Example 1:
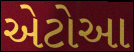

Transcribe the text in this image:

એટોઆ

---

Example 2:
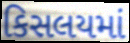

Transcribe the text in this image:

કિસલયમાં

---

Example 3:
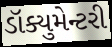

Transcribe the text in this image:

ડૉક્યુમેન્ટરી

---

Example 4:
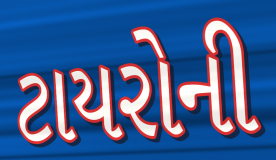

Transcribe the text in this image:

ટાયરોની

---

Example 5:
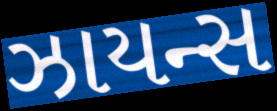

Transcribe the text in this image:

ઝાયન્સ